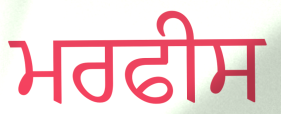
ਮਰਫੀਸ